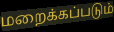
மறைக்கப்படும்